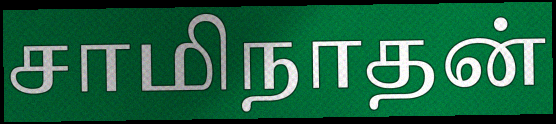
சாமிநாதன்